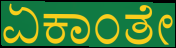
ಏಕಾಂತೇ